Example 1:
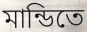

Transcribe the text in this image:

মান্ডিতে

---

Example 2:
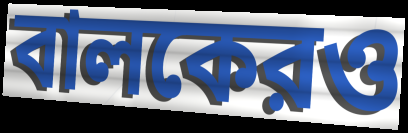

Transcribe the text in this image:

বালকেরও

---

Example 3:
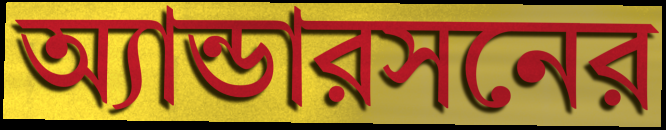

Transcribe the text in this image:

অ্যান্ডারসনের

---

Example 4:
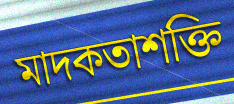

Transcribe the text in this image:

মাদকতাশক্তি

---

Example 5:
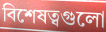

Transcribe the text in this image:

বিশেষত্বগুলো